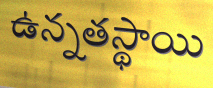
ఉన్నతస్థాయి